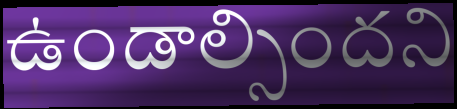
ఉండాల్సిందని